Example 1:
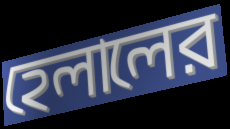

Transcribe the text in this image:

হেলালের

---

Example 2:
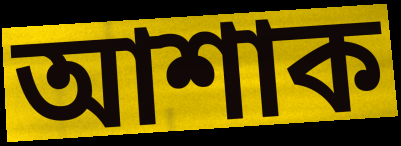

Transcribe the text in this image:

আশাক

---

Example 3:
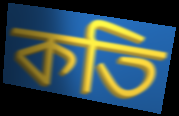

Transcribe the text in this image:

কতি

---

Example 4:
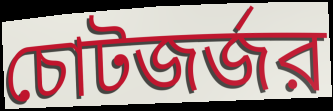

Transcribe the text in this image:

চোটজর্জর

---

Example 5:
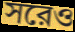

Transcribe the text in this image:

সরেও